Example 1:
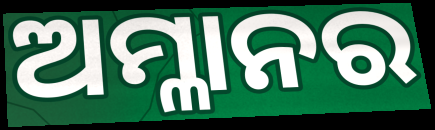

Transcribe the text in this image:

ଅମ୍ଳାନର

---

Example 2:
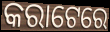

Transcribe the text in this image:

କରାଟେରେ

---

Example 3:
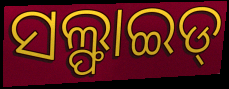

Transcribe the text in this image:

ସଲ୍ଫାଇଡ୍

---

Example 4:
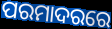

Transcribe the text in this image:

ପରମାଦରରେ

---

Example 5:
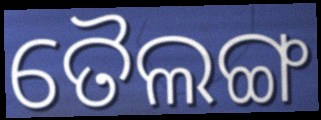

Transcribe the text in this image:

ତୈଲଙ୍ଗ